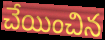
చేయించిన